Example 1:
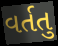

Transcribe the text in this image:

વર્તતુ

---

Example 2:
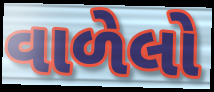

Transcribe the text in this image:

વાળેલો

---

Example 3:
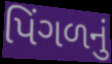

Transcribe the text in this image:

પિંગળનું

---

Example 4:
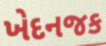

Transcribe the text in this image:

ખેદનજક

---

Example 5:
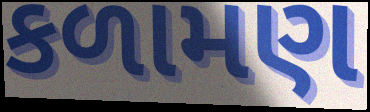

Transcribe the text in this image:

કળામણ